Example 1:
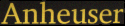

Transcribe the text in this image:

Anheuser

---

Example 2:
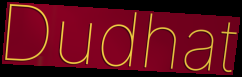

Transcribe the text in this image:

Dudhat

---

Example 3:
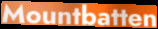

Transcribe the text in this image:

Mountbatten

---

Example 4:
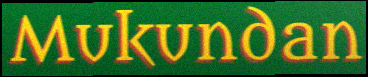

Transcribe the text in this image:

Mukundan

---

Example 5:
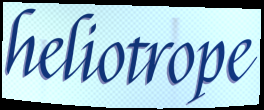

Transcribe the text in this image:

heliotrope